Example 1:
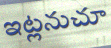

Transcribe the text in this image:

ఇట్లనుచూ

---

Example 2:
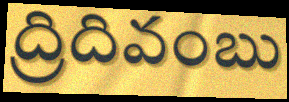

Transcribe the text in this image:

ద్రిదివంబు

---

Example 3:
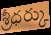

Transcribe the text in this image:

శ్రీధర్కు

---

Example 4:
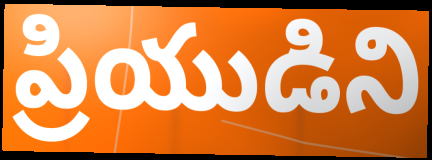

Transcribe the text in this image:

ప్రియుడిని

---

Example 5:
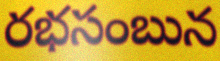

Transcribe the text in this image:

రభసంబున